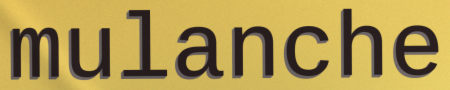
mulanche